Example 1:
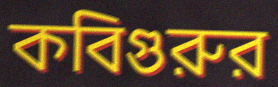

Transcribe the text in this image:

কবিগুরুর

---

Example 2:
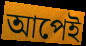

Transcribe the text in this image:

আপেই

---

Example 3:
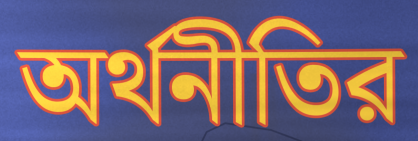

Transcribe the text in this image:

অর্থনীতির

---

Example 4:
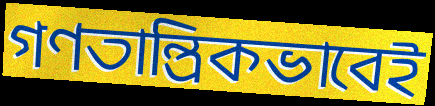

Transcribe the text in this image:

গণতান্ত্রিকভাবেই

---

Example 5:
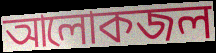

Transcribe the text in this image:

আলোকজল